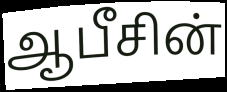
ஆபீசின்